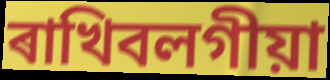
ৰাখিবলগীয়া